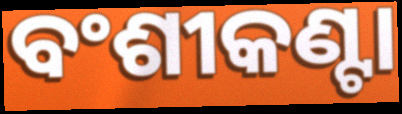
ବଂଶୀକଣ୍ଟା